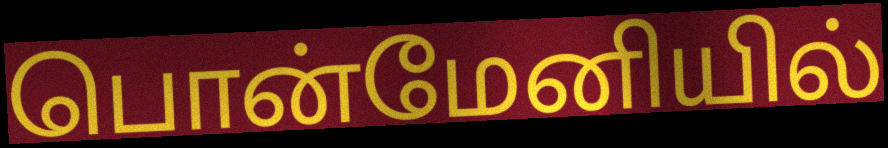
பொன்மேனியில்